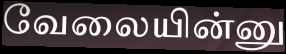
வேலையின்னு